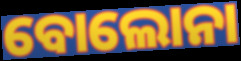
ବୋଲୋନା